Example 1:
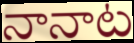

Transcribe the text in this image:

నానాట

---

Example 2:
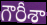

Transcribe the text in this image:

గౌరీశా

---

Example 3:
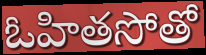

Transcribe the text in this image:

ఓహితసోతో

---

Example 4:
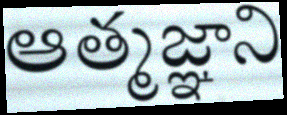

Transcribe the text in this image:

ఆత్మజ్ఞాని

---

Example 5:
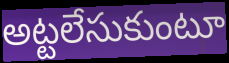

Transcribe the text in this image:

అట్టలేసుకుంటూ